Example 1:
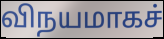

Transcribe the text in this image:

விநயமாகச்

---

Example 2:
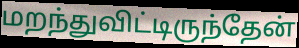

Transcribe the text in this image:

மறந்துவிட்டிருந்தேன்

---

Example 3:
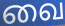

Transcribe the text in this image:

வை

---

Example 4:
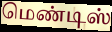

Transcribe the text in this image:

மெண்டிஸ்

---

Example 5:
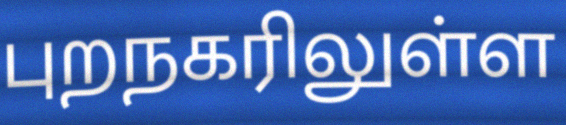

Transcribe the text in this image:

புறநகரிலுள்ள